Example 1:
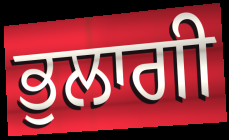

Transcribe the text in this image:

ਭੁਲਾਗੀ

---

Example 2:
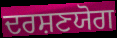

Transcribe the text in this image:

ਦਰਸ਼ਣਯੋਗ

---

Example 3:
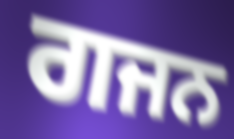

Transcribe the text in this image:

ਗਜਨ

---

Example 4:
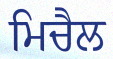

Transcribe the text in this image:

ਮਿਚੈਲ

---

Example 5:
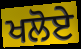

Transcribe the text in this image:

ਖਲੋਏ